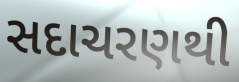
સદાચરણથી